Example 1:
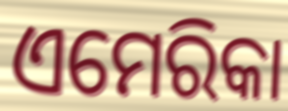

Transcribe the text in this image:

ଏମେରିକା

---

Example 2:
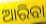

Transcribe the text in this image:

ଆରିବା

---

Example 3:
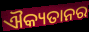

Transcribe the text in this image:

ଐକ୍ୟତାନର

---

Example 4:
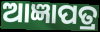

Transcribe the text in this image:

ଆଜ୍ଞାପତ୍ର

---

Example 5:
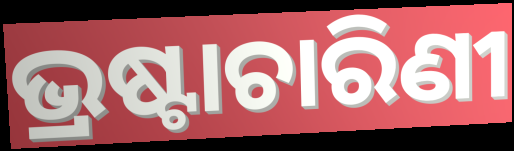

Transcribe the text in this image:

ଭ୍ରଷ୍ଟାଚାରିଣୀ